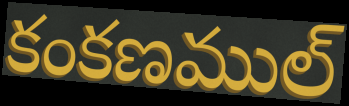
కంకణముల్